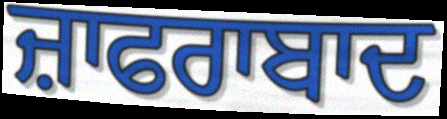
ਜ਼ਾਫਰਾਬਾਦ